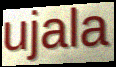
ujala